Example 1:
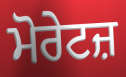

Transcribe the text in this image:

ਮੋਰੇਟਜ਼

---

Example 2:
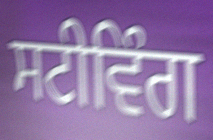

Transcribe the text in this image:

ਸਟੀਵਿੰਗ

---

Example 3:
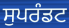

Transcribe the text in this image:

ਸੁਪਰੰਡਟ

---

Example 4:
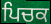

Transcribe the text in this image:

ਪਿਚਕ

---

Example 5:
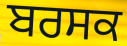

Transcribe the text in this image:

ਬਰਸਕ